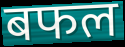
बफल